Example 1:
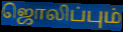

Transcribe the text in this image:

ஜொலிப்பும்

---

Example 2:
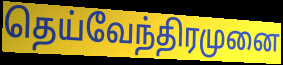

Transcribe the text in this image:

தெய்வேந்திரமுனை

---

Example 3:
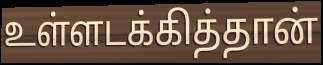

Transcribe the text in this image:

உள்ளடக்கித்தான்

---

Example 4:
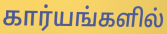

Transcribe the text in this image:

கார்யங்களில்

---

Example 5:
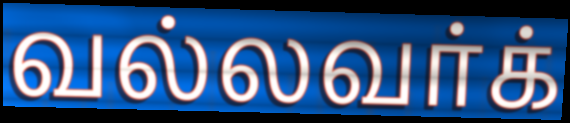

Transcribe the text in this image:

வல்லவர்க்